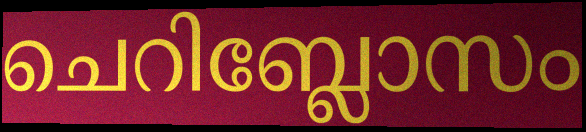
ചെറിബ്ലോസം